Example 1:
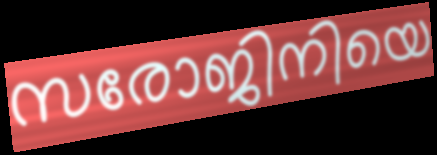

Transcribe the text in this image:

സരോജിനിയെ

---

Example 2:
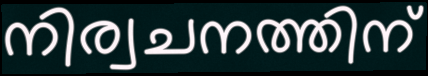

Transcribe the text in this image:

നിര്വചനത്തിന്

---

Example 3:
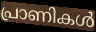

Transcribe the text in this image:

പ്രാണികൾ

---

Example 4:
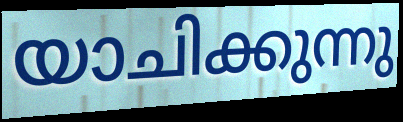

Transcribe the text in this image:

യാചിക്കുന്നു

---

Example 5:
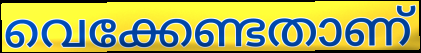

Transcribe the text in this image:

വെക്കേണ്ടതാണ്